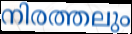
നിരത്തലും